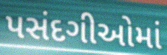
પસંદગીઓમાં